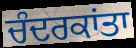
ਚੰਦਰਕਾਂਤਾ